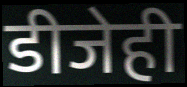
डीजेही